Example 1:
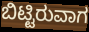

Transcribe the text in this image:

ಬಿಟ್ಟಿರುವಾಗ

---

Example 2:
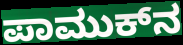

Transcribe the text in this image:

ಪಾಮುಕ್‍ನ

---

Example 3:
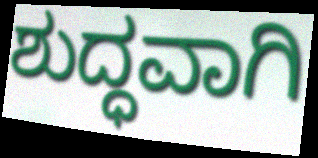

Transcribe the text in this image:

ಶುದ್ಧವಾಗಿ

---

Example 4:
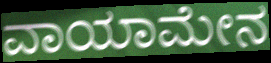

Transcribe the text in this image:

ವಾಯಾಮೇನ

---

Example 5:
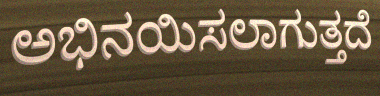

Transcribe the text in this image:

ಅಭಿನಯಿಸಲಾಗುತ್ತದೆ